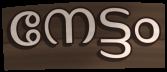
നേട്ടം